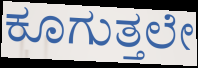
ಕೂಗುತ್ತಲೇ